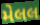
મેલલ